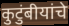
कुटुंबीयांचे